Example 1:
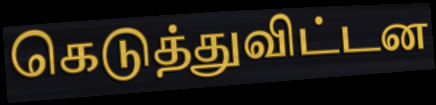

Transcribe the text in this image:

கெடுத்துவிட்டன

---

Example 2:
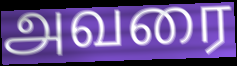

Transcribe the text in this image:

அவரை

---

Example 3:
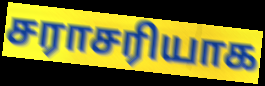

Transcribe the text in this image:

சராசரியாக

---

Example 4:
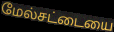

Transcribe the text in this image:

மேல்சட்டையை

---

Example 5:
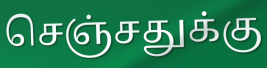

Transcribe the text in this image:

செஞ்சதுக்கு